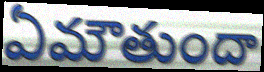
ఏమౌతుందా